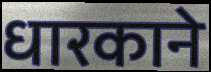
धारकाने